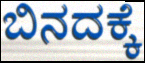
ಬಿನದಕ್ಕೆ